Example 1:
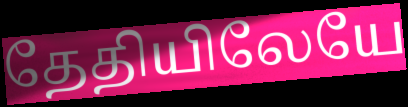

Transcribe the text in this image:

தேதியிலேயே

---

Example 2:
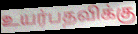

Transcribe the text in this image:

உயர்பதவிக்கு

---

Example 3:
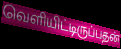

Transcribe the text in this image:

வெளியிட்டிருப்பதன்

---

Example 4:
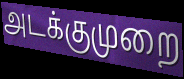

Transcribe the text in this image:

அடக்குமுறை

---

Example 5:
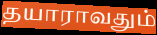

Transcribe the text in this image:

தயாராவதும்